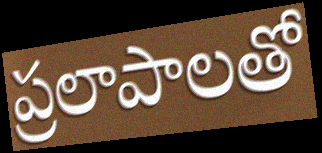
ప్రలాపాలతో